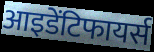
आइडेंटिफायर्स